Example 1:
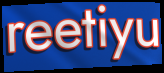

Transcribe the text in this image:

reetiyu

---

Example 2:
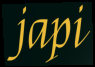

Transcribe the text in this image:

japi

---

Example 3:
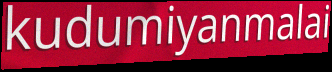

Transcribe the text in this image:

kudumiyanmalai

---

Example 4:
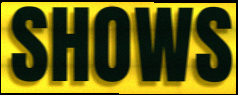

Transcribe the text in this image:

SHOWS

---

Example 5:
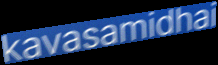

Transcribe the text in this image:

kavasamidhai